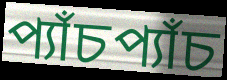
প্যাঁচপ্যাঁচ